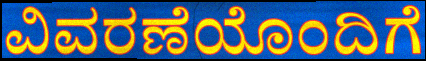
ವಿವರಣೆಯೊಂದಿಗೆ